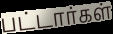
பட்டார்கள்